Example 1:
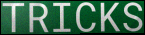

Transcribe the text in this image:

TRICKS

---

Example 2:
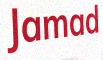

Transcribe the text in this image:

Jamad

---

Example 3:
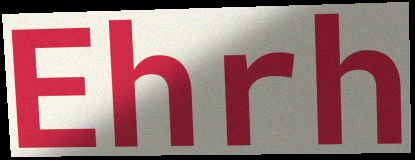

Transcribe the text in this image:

Ehrh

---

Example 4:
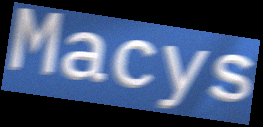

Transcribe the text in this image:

Macys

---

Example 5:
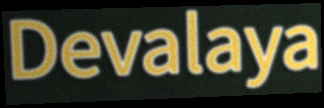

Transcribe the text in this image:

Devalaya